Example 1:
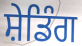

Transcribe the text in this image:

ਸ਼ੇਡਿੰਗ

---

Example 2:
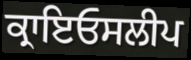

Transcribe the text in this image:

ਕ੍ਰਾਇਓਸਲੀਪ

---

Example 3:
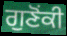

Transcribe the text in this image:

ਗੁਣੋਂਕੀ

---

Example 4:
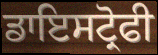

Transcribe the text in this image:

ਡਾਇਸਟ੍ਰੋਫੀ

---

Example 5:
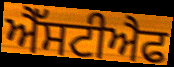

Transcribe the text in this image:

ਐੱਸਟੀਐਫ